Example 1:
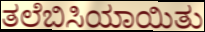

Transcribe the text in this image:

ತಲೆಬಿಸಿಯಾಯಿತು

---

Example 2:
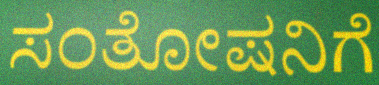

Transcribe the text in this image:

ಸಂತೋಷನಿಗೆ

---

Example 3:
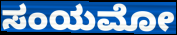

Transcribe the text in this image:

ಸಂಯಮೋ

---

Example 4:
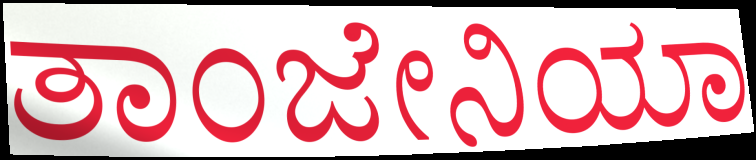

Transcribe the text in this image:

ತಾಂಜೇನಿಯಾ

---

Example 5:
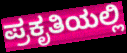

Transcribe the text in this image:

ಪ್ರಕೃತಿಯಲ್ಲಿ